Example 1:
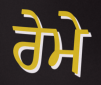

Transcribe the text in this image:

ਰੇਮੇ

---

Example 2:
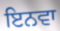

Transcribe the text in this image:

ਇਨਵਾ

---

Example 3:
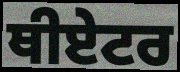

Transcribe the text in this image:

ਥੀਏਟਰ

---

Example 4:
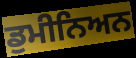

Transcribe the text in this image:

ਡੁਮੀਨਿਅਨ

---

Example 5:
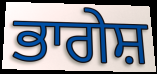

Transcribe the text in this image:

ਭਾਗੇਸ਼